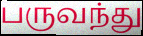
பருவந்து